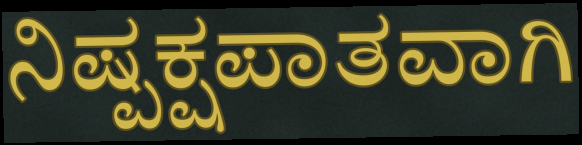
ನಿಷ್ಪಕ್ಷಪಾತವಾಗಿ